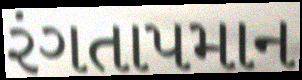
રંગતાપમાન